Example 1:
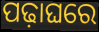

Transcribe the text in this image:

ପଢ଼ାଘରେ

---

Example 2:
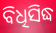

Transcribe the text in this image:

ବିଧିସିଦ୍ଧ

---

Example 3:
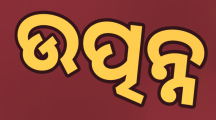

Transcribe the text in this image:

ଉତ୍ପନ୍ନ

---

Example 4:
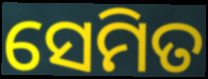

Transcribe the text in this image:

ସେମିତ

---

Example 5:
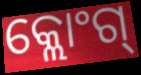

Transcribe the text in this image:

କ୍ଲୋଂଗ୍